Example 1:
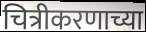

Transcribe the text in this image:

चित्रीकरणाच्या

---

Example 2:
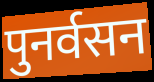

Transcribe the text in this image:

पुनर्वसन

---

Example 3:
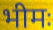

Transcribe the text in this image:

भीमः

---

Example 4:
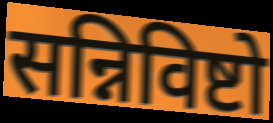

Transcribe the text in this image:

सन्निविष्टो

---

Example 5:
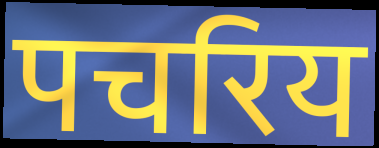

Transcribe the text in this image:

पचरिय